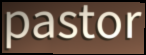
pastor